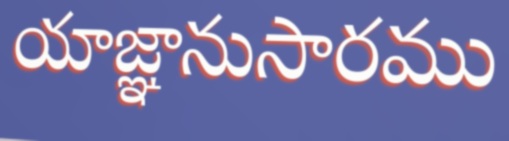
యాజ్ఞానుసారము